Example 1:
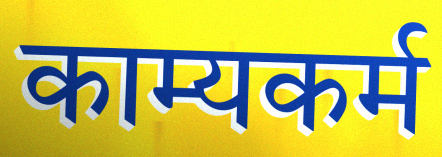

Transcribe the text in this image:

काम्यकर्म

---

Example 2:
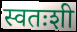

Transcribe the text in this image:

स्वतःशी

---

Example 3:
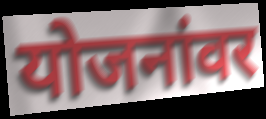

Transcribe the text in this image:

योजनांवर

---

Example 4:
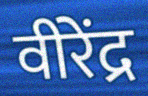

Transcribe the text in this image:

वीरेंद्र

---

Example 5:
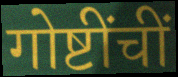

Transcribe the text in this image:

गोष्टींचीं